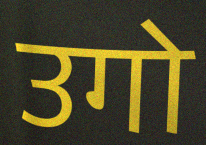
उगो